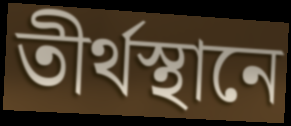
তীর্থস্থানে